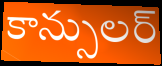
కాన్సులర్